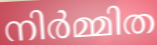
നിർമ്മിത